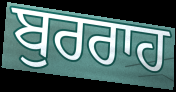
ਬੁਰਰਾਹ